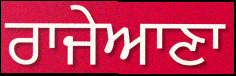
ਰਾਜੇਆਣਾ